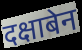
दक्षाबेन